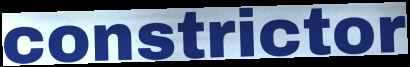
constrictor